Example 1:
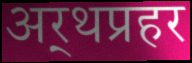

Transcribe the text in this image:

अर्थप्रहर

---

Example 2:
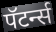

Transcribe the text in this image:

पॅटर्न्स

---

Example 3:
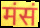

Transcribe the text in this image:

मंसं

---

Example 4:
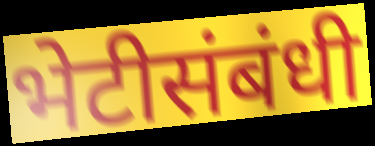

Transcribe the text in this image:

भेटीसंबंधी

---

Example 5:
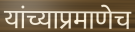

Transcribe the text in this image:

यांच्याप्रमाणेच